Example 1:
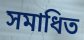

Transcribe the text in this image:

সমাধিত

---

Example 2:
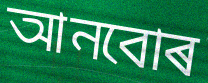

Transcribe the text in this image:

আনবোৰ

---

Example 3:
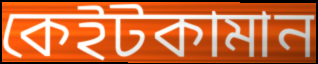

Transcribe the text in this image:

কেইটকামান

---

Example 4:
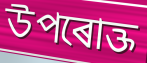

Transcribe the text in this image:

উপৰোক্ত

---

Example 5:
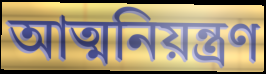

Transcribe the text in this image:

আত্মনিয়ন্ত্ৰণ